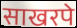
साखरपे